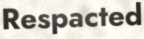
Respacted